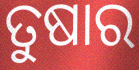
ତୁଷାର